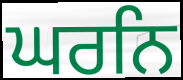
ਘਰਨਿ